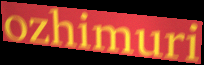
ozhimuri